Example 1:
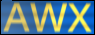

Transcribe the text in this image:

AWX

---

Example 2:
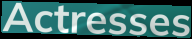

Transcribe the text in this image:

Actresses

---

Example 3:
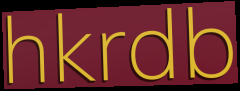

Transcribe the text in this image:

hkrdb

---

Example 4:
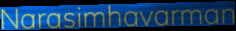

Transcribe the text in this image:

Narasimhavarman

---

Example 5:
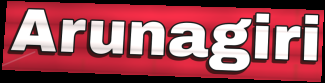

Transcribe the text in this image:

Arunagiri